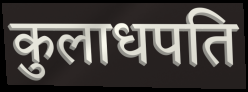
कुलाधपति